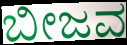
ಬೀಜವ